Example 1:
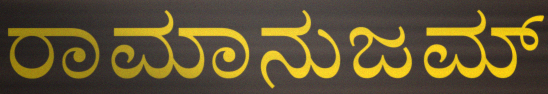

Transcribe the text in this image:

ರಾಮಾನುಜಮ್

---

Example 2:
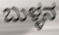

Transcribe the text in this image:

ಬುಳ್ಳನ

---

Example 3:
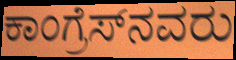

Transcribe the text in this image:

ಕಾಂಗ್ರೆಸ್‌ನವರು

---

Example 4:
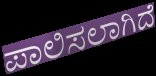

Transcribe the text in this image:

ಪಾಲಿಸಲಾಗಿದೆ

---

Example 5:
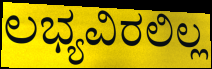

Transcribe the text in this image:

ಲಭ್ಯವಿರಲಿಲ್ಲ